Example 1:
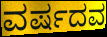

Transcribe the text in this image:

ವರ್ಷದವ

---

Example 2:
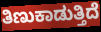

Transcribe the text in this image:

ತಿಣುಕಾಡುತ್ತಿದೆ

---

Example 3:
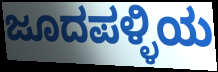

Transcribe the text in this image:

ಜೂದಪಳ್ಳಿಯ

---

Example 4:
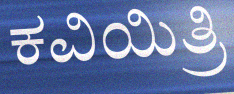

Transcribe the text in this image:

ಕವಿಯಿತ್ರಿ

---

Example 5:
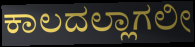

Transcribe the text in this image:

ಕಾಲದಲ್ಲಾಗಲೀ